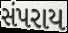
સંપરાય